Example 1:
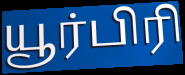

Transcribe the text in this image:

யூர்பிரி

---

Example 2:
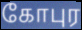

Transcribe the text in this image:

கோபுர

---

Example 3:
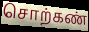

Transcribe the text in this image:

சொற்கண்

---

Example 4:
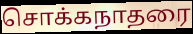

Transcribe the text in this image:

சொக்கநாதரை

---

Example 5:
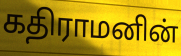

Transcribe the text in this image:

கதிராமனின்